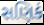
સણિકં